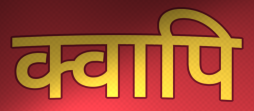
क्वापि